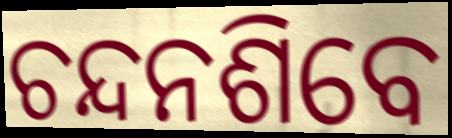
ଚନ୍ଦନଶିବେ